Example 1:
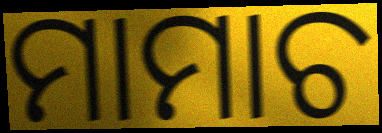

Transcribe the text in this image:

ମାମାଚ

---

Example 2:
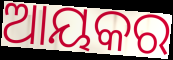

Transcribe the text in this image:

ଆୟକର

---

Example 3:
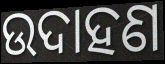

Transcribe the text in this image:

ଉଦାହଣ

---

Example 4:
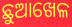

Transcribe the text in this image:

ଛୁଆଖେଳ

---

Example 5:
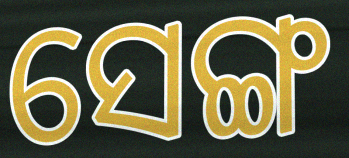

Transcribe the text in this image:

ସେଙ୍ଗ